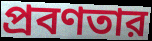
প্রবণতার